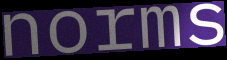
norms